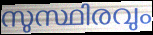
സുസ്ഥിരവും